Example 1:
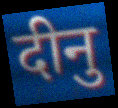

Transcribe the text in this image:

दीनु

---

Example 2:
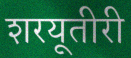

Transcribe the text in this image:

शरयूतीरी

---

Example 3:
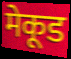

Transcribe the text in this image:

मेकूड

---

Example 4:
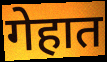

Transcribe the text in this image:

गेहात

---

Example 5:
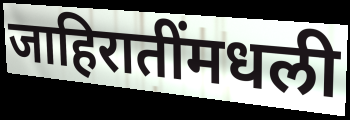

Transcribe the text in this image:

जाहिरातींमधली